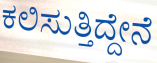
ಕಲಿಸುತ್ತಿದ್ದೇನೆ